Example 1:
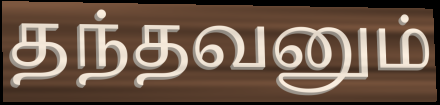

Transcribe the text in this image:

தந்தவனும்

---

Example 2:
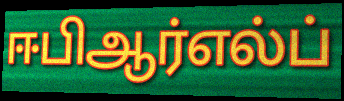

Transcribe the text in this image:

ஈபிஆர்எல்ப்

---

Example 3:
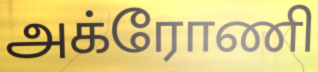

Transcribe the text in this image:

அக்ரோணி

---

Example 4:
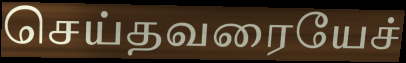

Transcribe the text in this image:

செய்தவரையேச்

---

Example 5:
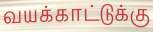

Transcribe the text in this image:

வயக்காட்டுக்கு